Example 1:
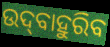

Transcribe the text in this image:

ଉଦ୍‌ବାହୁରିବ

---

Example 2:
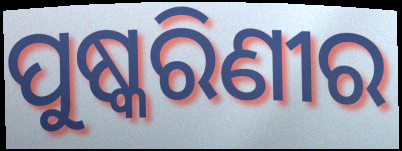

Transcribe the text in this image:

ପୁଷ୍କରିଣୀର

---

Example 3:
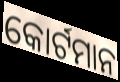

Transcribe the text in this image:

କୋର୍ଟମାନ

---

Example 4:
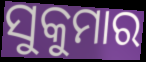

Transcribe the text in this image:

ସୁକୁମାର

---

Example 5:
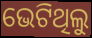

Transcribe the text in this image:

ଭେଟିଥିଲୁ